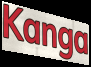
Kanga